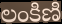
లంకిణి